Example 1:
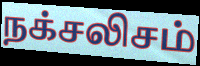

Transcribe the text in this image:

நக்சலிசம்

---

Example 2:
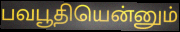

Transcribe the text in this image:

பவபூதியென்னும்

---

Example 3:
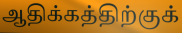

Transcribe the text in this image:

ஆதிக்கத்திற்குக்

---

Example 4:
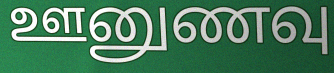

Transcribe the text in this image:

ஊனுணவு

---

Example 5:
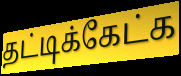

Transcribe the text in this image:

தட்டிக்கேட்க